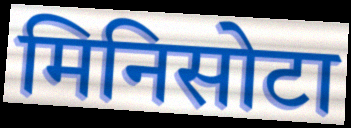
मिनिसोटा